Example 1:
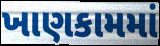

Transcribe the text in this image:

ખાણકામમાં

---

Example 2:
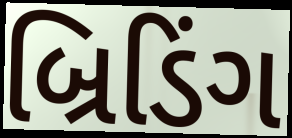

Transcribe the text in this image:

બ્રિડિંગ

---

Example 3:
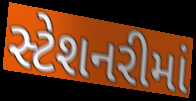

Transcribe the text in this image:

સ્ટેશનરીમાં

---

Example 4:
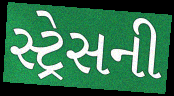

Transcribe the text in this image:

સ્ટ્રેસની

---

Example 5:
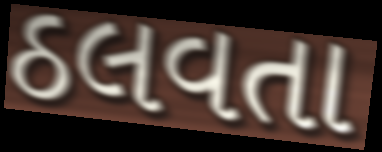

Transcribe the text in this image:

ઠલવતા